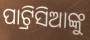
ପାଟ୍ରିସିଆଙ୍କୁ